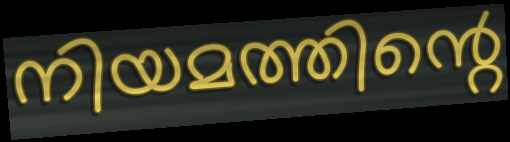
നിയമത്തിന്റെ